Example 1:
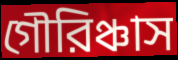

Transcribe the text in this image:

গৌরিঞ্চাস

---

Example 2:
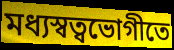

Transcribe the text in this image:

মধ্যস্বত্বভোগীতে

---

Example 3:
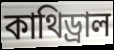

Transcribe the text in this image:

কাথিড্রাল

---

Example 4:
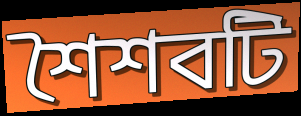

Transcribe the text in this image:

শৈশবটি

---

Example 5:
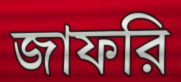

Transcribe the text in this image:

জাফরি